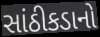
સાંઠીકડાનો